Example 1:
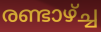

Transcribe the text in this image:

രണ്ടാഴ്ച്ച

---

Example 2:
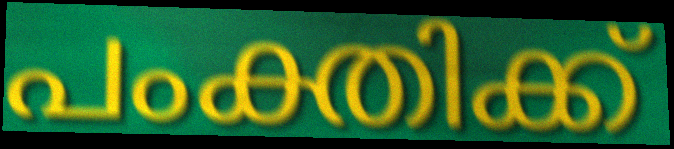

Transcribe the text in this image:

പംക്തിക്ക്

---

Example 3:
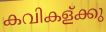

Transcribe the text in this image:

കവികള്ക്കു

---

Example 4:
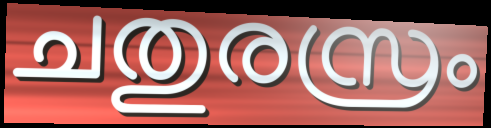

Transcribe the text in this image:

ചതുരസ്രം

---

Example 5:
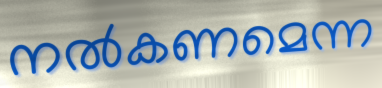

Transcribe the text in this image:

നൽകണമെന്ന